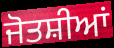
ਜੋਤਸ਼ੀਆਂ